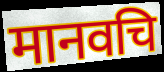
मानवचि